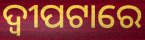
ଦ୍ୱୀପଟାରେ